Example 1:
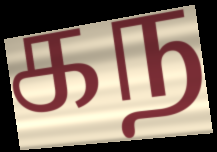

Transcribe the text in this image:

கந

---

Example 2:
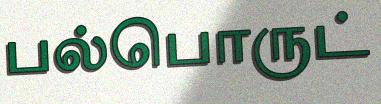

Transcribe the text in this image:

பல்பொருட்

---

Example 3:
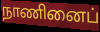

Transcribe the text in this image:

நாணினைப்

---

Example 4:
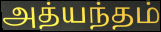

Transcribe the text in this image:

அத்யந்தம்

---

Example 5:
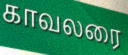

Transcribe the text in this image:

காவலரை